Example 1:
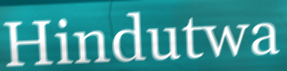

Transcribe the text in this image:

Hindutwa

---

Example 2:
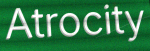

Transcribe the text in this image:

Atrocity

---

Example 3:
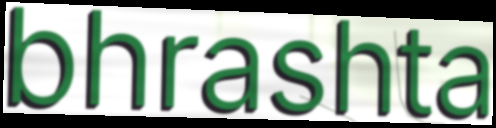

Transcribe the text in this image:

bhrashta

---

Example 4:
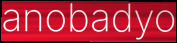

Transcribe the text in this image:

anobadyo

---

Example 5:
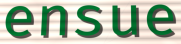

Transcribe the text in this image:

ensue